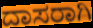
ದಾಸರಾಗಿ